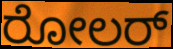
ರೋಲರ್